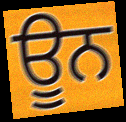
ਊਨ